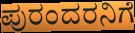
ಪುರಂದರನಿಗೆ